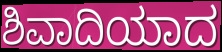
ಶಿವಾದಿಯಾದ